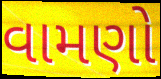
વામણો